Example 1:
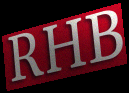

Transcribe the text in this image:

RHB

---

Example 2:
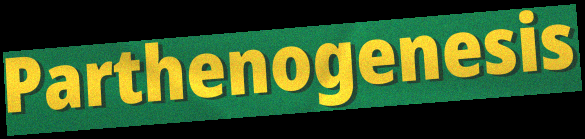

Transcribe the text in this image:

Parthenogenesis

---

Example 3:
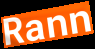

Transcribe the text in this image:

Rann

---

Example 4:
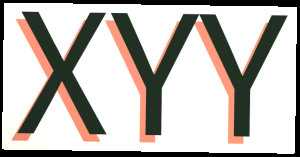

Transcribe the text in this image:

XYY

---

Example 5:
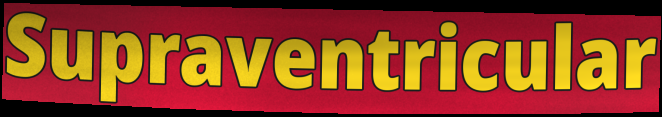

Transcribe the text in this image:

Supraventricular